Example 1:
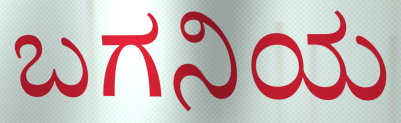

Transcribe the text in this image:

ಬಗನಿಯ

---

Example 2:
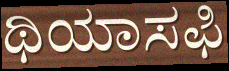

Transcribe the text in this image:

ಥಿಯಾಸಫಿ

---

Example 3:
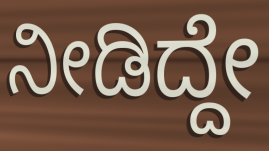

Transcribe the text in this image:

ನೀಡಿದ್ದೇ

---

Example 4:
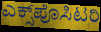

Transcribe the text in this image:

ಎಕ್ಸ್‌ಪೊಸಿಟರಿ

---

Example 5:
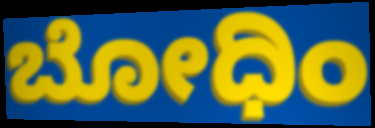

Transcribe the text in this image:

ಬೋಧಿಂ